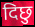
दिछु